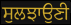
ਸੁਲਝਾਉਣੀ